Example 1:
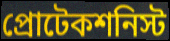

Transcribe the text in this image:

প্রোটেকশনিস্ট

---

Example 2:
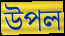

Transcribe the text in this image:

উপল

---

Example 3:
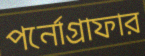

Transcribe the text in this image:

পর্নোগ্রাফার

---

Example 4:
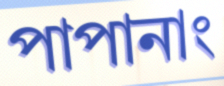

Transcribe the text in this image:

পাপানাং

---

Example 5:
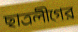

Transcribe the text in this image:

ছাত্রলীগের